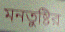
মনতুষ্টির